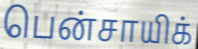
பென்சாயிக்